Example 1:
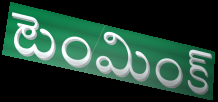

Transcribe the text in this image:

టెంమింక్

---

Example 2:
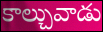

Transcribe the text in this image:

కాల్చువాడు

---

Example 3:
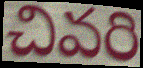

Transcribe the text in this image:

చివరి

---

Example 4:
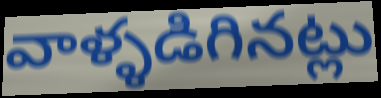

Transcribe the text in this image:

వాళ్ళడిగినట్లు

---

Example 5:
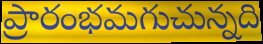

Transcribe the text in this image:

ప్రారంభమగుచున్నది